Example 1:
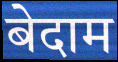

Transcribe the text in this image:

बेदाम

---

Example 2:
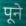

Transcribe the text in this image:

पूने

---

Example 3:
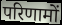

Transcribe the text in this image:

परिणामों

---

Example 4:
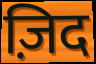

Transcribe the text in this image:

ज़िद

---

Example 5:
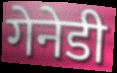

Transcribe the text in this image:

गेनेडी